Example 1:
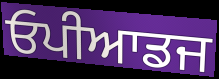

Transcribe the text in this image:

ਓਪੀਆਡਜ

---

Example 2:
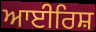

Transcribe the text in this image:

ਆਈਰਿਸ਼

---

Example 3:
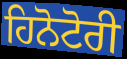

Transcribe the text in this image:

ਹਿਨੋਟੋਰੀ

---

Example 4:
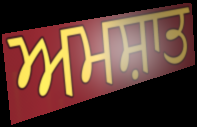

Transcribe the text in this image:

ਅਮਸ਼ਾਤ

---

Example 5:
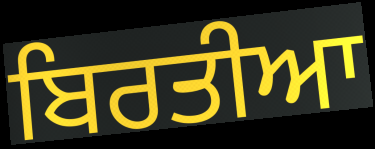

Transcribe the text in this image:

ਬਿਰਤੀਆ